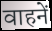
वाहनें